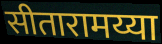
सीतारामय्या